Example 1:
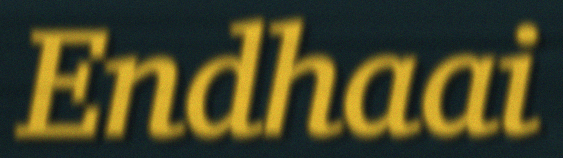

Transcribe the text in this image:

Endhaai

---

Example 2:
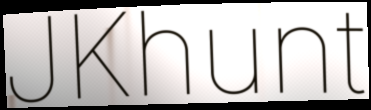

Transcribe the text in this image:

JKhunt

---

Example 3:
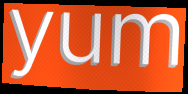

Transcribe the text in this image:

yum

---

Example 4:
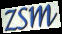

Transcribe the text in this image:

zsm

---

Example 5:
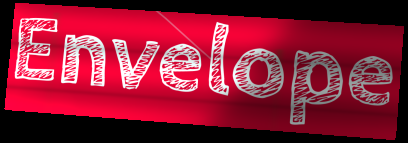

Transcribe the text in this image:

Envelope